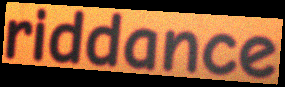
riddance